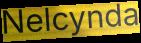
Nelcynda